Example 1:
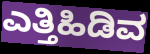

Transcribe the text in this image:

ಎತ್ತಿಹಿಡಿವ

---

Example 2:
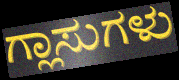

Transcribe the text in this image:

ಗ್ಲಾಸುಗಳು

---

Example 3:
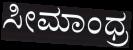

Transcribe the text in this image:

ಸೀಮಾಂಧ್ರ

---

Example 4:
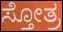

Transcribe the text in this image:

ಸ್ತೋತ್ರ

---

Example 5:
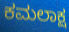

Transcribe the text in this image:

ಕಮಲಾಕ್ಷ